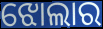
ଝୋଲାର